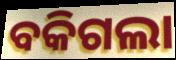
ବକିଗଲା